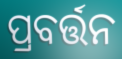
ପ୍ରବର୍ତ୍ତନ